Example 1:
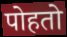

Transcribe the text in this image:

पोहतो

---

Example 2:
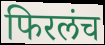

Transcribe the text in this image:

फिरलंच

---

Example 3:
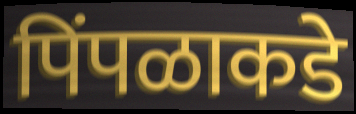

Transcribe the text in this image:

पिंपळाकडे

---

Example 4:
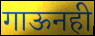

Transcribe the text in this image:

गाऊनही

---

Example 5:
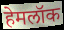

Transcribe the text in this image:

हेमलॉक